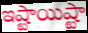
ఇష్టాయిష్టా